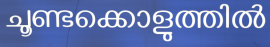
ചൂണ്ടക്കൊളുത്തിൽ